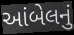
આંબેલનું